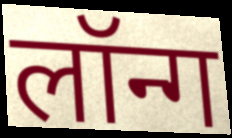
लॉन्ग